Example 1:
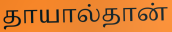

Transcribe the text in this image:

தாயால்தான்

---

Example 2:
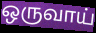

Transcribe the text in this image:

ஒருவாய்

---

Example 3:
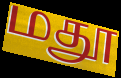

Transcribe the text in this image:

மதூ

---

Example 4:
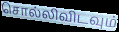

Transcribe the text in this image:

சொல்லிவிடவும்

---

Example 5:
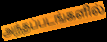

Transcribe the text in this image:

அந்தப்படங்களில்